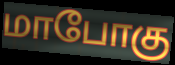
மாபோகு